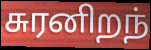
சுரனிறந்